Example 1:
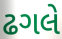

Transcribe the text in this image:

ઢગલે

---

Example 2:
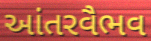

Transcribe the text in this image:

આંતરવૈભવ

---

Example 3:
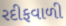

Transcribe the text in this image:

રદીફવાળી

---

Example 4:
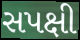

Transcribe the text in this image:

સપક્ષી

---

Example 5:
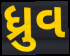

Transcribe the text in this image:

ધ્રુવ